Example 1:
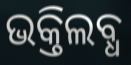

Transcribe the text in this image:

ଭକ୍ତିଲବ୍ଧ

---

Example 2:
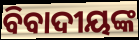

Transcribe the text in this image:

ବିବାଦୀୟଙ୍କ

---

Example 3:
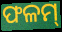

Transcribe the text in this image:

ଫଳମ୍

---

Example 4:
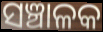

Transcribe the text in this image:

ସଞ୍ଚାଳକ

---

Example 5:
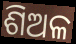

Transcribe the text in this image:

ଶିଅଳ